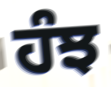
ਹੰਝ